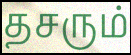
தசரும்